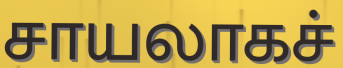
சாயலாகச்